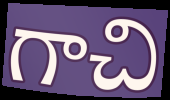
గాచి